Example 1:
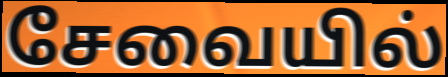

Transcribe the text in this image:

சேவையில்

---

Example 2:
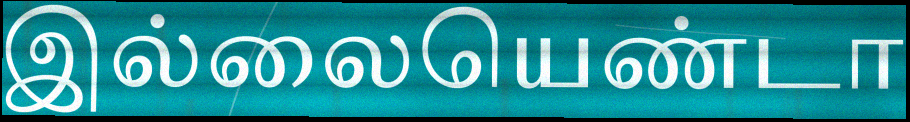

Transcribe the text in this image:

இல்லையெண்டா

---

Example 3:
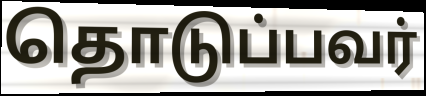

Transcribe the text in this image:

தொடுப்பவர்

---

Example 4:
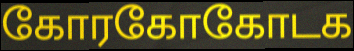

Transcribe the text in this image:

கோரகோகோடக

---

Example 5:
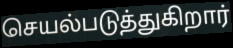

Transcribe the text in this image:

செயல்படுத்துகிறார்